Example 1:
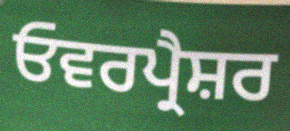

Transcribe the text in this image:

ਓਵਰਪ੍ਰੈਸ਼ਰ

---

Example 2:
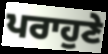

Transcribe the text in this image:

ਪਰਾਹੁਣੇ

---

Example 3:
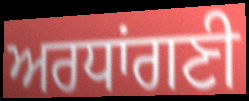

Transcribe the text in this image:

ਅਰਧਾਂਗਣੀ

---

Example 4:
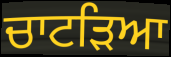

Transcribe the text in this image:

ਚਾਟੜਿਆ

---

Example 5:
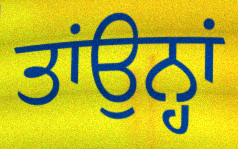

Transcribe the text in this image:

ਤਾਂਉਨ੍ਹਾਂ